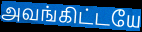
அவங்கிட்டயே